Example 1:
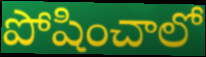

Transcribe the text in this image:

పోషించాలో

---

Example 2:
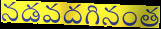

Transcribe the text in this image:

నడవదగినంత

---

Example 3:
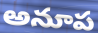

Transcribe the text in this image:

అనూప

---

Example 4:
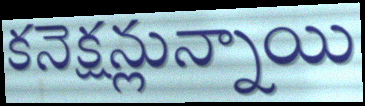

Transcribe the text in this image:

కనెక్షన్లున్నాయి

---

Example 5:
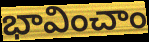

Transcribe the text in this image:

భావించాం